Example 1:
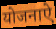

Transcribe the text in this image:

योजनाऐ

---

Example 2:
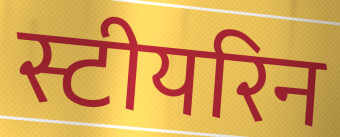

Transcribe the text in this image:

स्टीयरिन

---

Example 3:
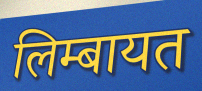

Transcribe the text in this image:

लिम्बायत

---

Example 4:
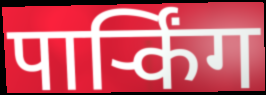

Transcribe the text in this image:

पार्र्किंग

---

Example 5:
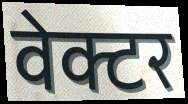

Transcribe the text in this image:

वेक्टर